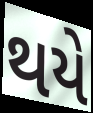
થયે